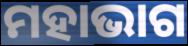
ମହାଭାଗ